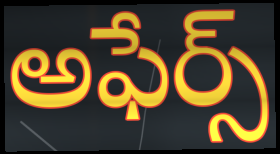
అఫేర్స్